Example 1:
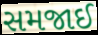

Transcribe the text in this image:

સમજાઈ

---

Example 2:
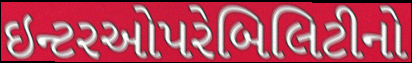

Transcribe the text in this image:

ઇન્ટરઓપરેબિલિટીનો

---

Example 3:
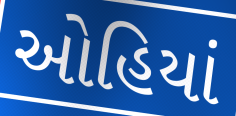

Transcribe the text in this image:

ઓહિયાં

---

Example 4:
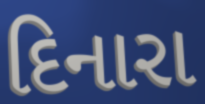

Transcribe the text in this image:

દિનારા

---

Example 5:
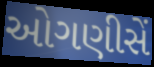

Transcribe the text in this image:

ઓગણીસેં